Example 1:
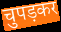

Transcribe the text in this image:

चुपड़कर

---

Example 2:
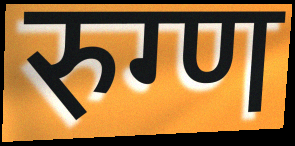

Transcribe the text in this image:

रुग्ण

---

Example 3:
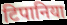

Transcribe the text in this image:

टिपानिया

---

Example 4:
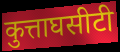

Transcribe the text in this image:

कुत्ताघसीटी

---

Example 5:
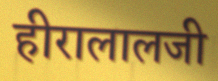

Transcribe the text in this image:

हीरालालजी